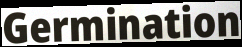
Germination